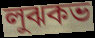
লুঝকভ